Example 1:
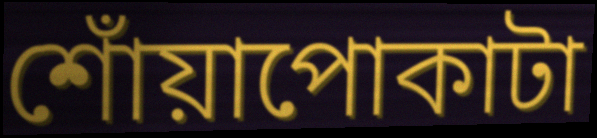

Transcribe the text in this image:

শোঁয়াপোকাটা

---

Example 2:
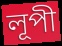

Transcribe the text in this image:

লূপী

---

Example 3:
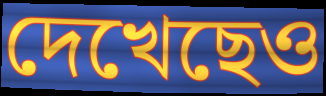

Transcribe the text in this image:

দেখেছেও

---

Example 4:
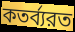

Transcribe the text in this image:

কতর্ব্যরত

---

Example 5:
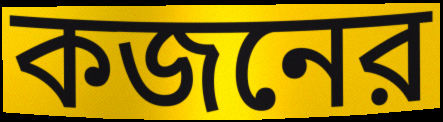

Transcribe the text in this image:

কজনের